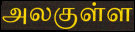
அலகுள்ள